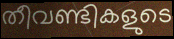
തീവണ്ടികളുടെ